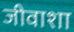
जीवाशा